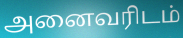
அனைவரிடம்